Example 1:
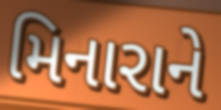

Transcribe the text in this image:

મિનારાને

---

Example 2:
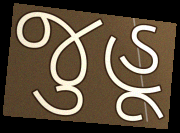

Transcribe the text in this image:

જુહૂ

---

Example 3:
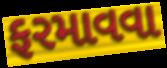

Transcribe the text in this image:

ફરમાવવા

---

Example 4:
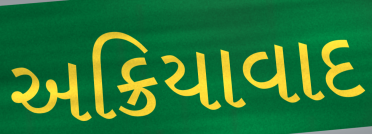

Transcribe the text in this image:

અક્રિયાવાદ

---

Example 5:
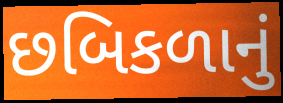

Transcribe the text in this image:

છબિકળાનું